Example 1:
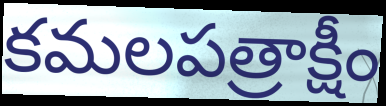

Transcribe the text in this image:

కమలపత్రాక్షీం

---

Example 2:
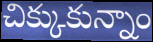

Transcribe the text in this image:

చిక్కుకున్నాం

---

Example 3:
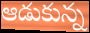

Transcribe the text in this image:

ఆడుకున్న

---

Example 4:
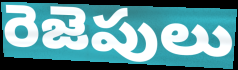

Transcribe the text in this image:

రెజెపులు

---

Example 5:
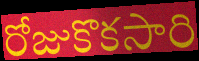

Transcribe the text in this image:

రోజుకొకసారి